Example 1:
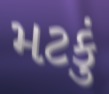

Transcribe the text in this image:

મટકું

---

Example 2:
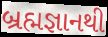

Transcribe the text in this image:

બ્રહ્મજ્ઞાનથી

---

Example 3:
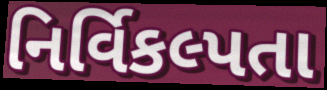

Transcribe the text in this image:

નિર્વિકલ્પતા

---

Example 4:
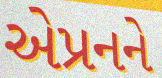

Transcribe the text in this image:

એપ્રનને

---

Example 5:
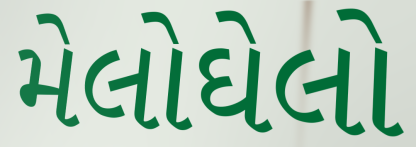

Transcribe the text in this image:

મેલોઘેલો